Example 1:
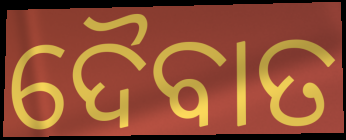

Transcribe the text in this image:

ଦୈବାତ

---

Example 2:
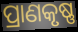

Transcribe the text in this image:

ପ୍ରାଣକୃଷ୍ଣ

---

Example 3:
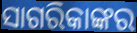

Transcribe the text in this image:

ସାଗରିକାଙ୍କର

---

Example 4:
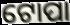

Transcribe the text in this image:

ଟୋପା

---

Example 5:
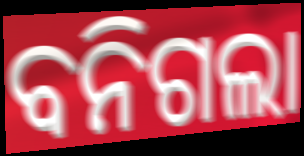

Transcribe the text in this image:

ବନିଗଲା